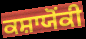
ਕਸ਼ਾਯੋਂਕੀ